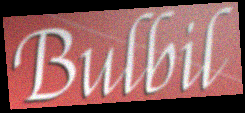
Bulbil